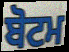
ਬੋਟਮ